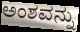
ಅಂಶವನ್ನು